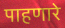
पाहणारे